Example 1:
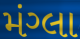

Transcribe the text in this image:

મંગ્લા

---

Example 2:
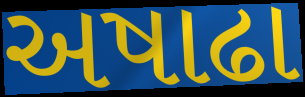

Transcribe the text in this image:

અષાઢા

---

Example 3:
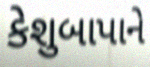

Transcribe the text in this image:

કેશુબાપાને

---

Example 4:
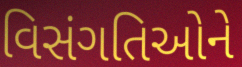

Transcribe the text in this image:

વિસંગતિઓને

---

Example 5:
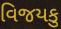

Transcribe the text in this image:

વિજયકુ